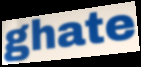
ghate